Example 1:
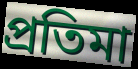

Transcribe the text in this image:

প্ৰতিমা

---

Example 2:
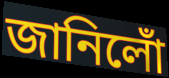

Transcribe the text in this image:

জানিলোঁ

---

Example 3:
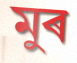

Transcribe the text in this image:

মুৰ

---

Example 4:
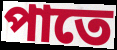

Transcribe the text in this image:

পাতে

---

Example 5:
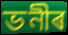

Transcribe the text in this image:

ভনীৰ